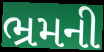
ભ્રમની